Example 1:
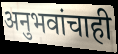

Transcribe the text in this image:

अनुभवांचाही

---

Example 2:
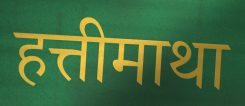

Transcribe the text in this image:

हत्तीमाथा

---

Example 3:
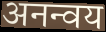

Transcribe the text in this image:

अनन्वय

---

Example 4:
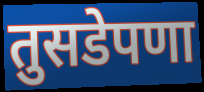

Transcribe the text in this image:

तुसडेपणा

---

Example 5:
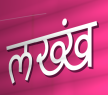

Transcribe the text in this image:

लख्खं